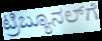
ಟ್ರಿಬ್ಯೂನಲ್‌ಗೆ